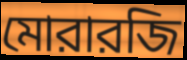
মোরারজি